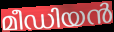
മീഡിയൻ